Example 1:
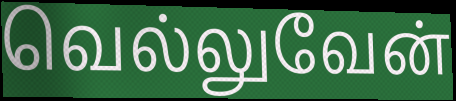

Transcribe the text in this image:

வெல்லுவேன்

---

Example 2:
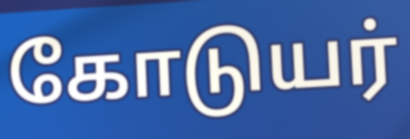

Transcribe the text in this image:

கோடுயர்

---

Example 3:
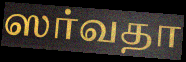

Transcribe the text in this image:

ஸர்வதா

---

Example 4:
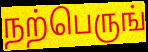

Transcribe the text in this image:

நற்பெருங்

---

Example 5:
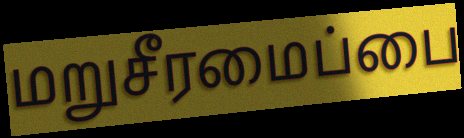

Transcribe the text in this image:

மறுசீரமைப்பை